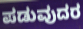
ಪಡುವುದರ